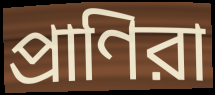
প্রাণিরা